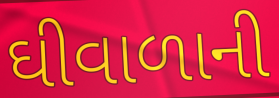
ઘીવાળાની